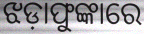
ଝଡ଼ାଫୁଙ୍କାରେ